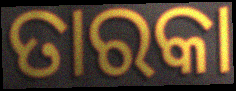
ତାରକା